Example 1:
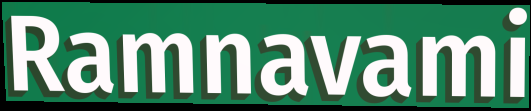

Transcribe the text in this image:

Ramnavami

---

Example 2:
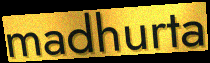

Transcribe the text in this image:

madhurta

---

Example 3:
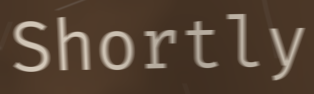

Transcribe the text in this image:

Shortly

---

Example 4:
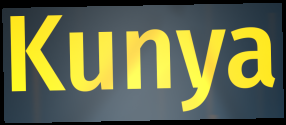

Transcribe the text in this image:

Kunya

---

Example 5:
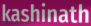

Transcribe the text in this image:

kashinath